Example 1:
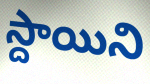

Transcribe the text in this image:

స్దాయిని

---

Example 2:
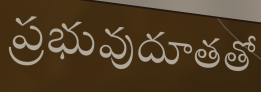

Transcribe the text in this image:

ప్రభువుదూతతో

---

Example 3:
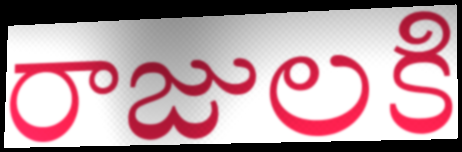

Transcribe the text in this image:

రాజులకి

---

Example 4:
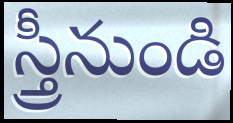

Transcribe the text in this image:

స్త్రీనుండి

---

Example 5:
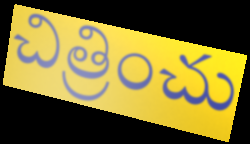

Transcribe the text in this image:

చిత్రించు